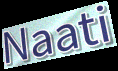
Naati